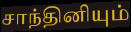
சாந்தினியும்